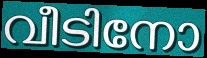
വീടിനോ